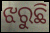
ଝରୁଛି